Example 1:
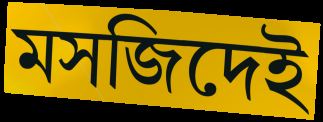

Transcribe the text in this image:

মসজিদেই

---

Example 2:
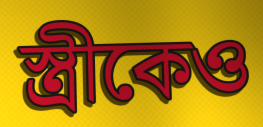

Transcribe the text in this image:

স্ত্রীকেও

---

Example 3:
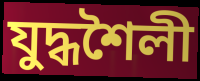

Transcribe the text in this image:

যুদ্ধশৈলী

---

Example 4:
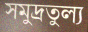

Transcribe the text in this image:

সমুদ্রতুল্য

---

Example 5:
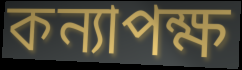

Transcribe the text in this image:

কন্যাপক্ষ